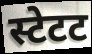
स्टेटट